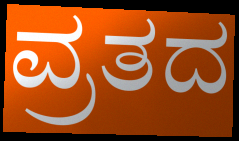
ವ್ರತದ